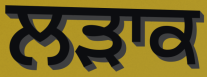
ਲੜਾਕ